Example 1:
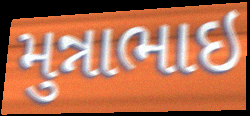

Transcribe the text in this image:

મુન્નાભાઇ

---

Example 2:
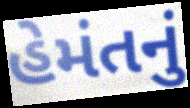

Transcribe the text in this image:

હેમંતનું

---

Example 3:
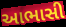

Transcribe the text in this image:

આભાસી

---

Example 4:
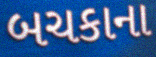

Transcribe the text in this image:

બચકાના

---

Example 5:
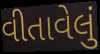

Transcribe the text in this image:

વીતાવેલું